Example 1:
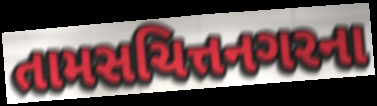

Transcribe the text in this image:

તામસચિત્તનગરના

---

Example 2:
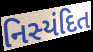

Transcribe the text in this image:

નિસ્યંદિત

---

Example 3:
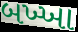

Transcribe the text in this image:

બખ્ખા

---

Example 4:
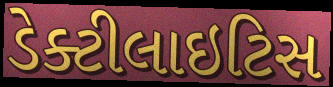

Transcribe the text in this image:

ડેક્ટીલાઇટિસ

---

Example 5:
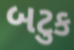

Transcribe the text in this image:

બટુક